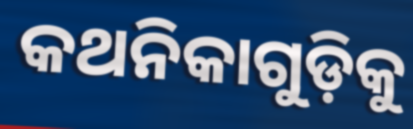
କଥନିକାଗୁଡ଼ିକୁ